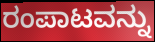
ರಂಪಾಟವನ್ನು